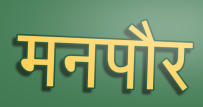
मनपौर